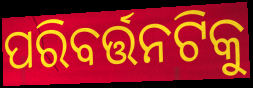
ପରିବର୍ତ୍ତନଟିକୁ